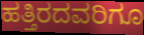
ಹತ್ತಿರದವರಿಗೂ